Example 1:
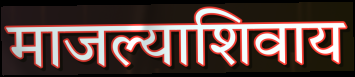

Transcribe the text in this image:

माजल्याशिवाय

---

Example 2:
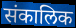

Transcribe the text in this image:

संकालिक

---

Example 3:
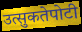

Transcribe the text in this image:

उत्सुकतेपोटी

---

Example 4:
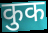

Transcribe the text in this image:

कुक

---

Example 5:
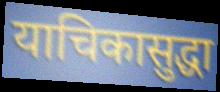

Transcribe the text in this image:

याचिकासुद्धा